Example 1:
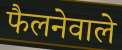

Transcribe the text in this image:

फैलनेवाले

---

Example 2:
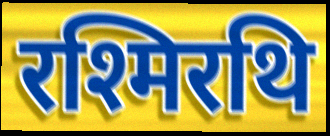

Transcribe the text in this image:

रश्मिरथि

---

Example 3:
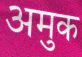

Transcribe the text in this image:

अमुक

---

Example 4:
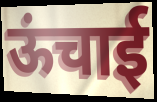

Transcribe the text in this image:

ऊंचाई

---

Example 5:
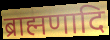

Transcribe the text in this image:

ब्राह्मणादि